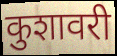
कुशावरी